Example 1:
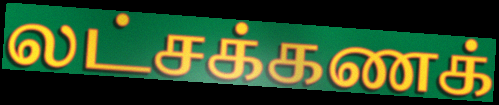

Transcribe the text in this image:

லட்சக்கணக்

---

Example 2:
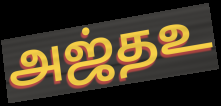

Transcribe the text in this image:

அஜ்தஉ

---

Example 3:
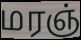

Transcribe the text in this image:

மரஞ்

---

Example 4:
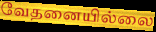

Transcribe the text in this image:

வேதனையில்லை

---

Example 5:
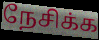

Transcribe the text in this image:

நேசிக்க